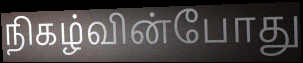
நிகழ்வின்போது